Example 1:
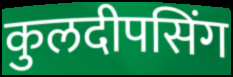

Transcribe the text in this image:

कुलदीपसिंग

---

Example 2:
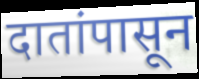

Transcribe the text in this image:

दातांपासून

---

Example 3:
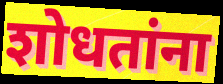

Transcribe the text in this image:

शोधतांना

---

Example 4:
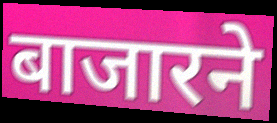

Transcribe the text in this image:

बाजारने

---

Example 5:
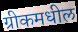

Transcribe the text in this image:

ग्रीकमधील